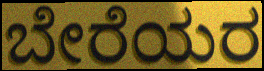
ಬೇರೆಯರ